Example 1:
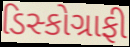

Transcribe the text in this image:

ડિસ્કોગ્રાફી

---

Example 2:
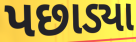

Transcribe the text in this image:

પછાડ્યા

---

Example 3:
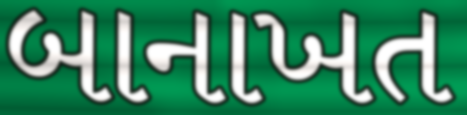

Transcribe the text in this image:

બાનાખત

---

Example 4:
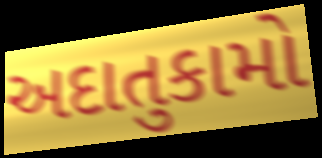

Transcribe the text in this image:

અદાતુકામો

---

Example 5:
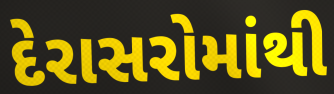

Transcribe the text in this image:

દેરાસરોમાંથી